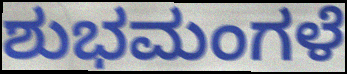
ಶುಭಮಂಗಳೆ